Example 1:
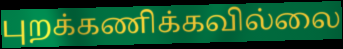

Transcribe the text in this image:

புறக்கணிக்கவில்லை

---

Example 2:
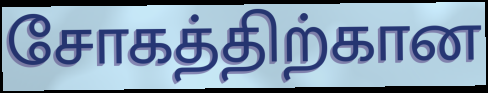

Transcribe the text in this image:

சோகத்திற்கான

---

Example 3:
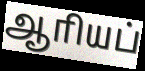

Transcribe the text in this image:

ஆரியப்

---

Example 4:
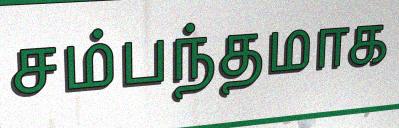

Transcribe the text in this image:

சம்பந்தமாக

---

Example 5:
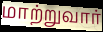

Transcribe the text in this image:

மாற்றுவார்